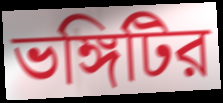
ভঙ্গিটির